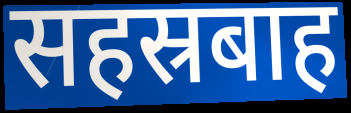
सहस्रबाह